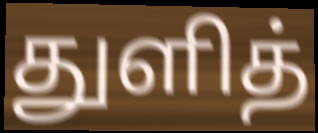
துளித்